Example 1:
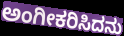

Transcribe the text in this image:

ಅಂಗೀಕರಿಸಿದನು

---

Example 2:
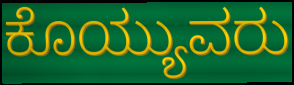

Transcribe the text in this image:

ಕೊಯ್ಯುವರು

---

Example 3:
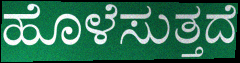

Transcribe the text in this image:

ಹೊಳೆಸುತ್ತದೆ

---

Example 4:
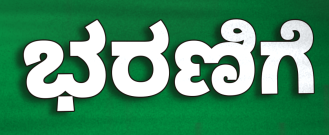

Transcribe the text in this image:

ಭರಣಿಗೆ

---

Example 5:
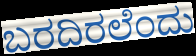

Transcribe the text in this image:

ಬರದಿರಲೆಂದು